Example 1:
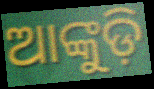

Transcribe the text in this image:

ଆଙ୍କୁଡ଼ି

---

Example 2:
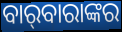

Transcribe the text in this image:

ବାର୍‌ବାରାଙ୍କର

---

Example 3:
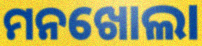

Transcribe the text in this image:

ମନଖୋଲା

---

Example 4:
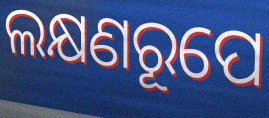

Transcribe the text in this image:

ଲକ୍ଷଣରୂପେ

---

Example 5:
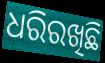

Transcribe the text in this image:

ଧରିରଖିଛି